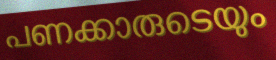
പണക്കാരുടെയും